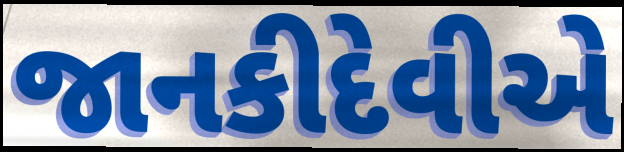
જાનકીદેવીએ